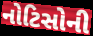
નોટિસોની